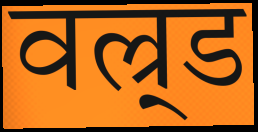
वल्र्ड